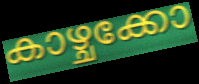
കാഴ്ചക്കോ